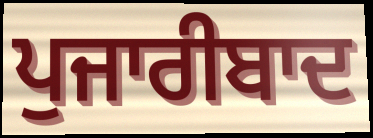
ਪੁਜਾਰੀਬਾਦ